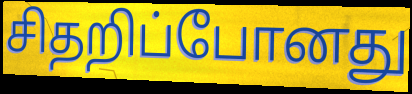
சிதறிப்போனது